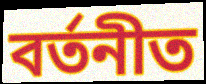
বৰ্তনীত